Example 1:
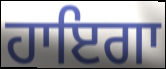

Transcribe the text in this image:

ਹਾਇਗਾ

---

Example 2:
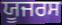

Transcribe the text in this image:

ਯੂਜਰਸ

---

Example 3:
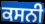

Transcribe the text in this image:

ਕਸਨੀ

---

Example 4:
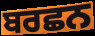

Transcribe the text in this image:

ਬਰਛਨ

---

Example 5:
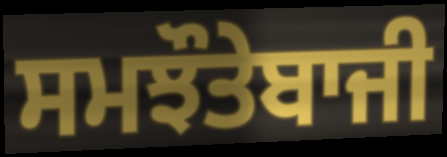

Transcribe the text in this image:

ਸਮਝੌਤੇਬਾਜੀ